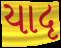
યાદૃ